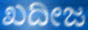
ಖದೀಜ